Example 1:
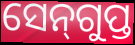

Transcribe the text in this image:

ସେନ୍‌ଗୁପ୍ତ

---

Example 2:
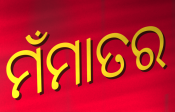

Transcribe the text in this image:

ମଁମାତର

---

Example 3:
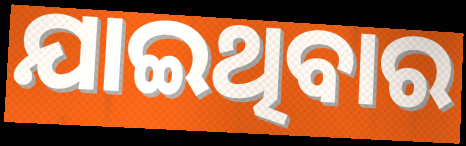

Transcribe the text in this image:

ଯାଇଥିବାର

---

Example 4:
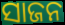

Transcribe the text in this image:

ସାଜନ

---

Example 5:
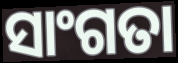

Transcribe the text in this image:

ସାଂଗତା